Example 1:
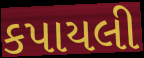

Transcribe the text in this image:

કપાયલી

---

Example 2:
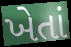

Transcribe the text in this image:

ખેતાં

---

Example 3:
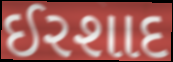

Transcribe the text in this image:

ઈરશાદ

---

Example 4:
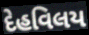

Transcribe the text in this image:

દેહવિલય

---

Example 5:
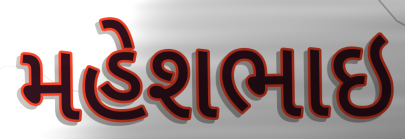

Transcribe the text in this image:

મહેશભાઇ